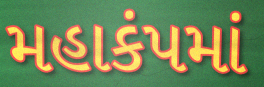
મહાકંપમાં